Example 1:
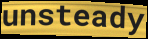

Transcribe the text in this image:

unsteady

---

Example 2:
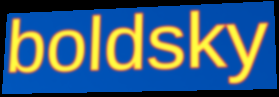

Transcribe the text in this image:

boldsky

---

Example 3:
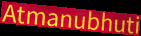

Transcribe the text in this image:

Atmanubhuti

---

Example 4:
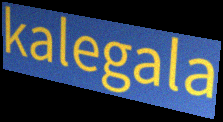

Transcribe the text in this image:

kalegala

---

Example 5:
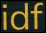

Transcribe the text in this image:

idf